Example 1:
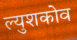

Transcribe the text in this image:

ल्युशकोव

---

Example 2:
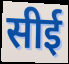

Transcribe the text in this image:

सीई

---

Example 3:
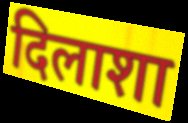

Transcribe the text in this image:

दिलाशा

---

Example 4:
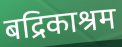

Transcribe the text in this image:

बद्रिकाश्रम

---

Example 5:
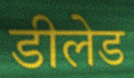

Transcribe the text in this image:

डीलेड